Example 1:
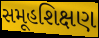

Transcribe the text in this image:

સમૂહશિક્ષણ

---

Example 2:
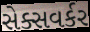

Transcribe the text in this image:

સેક્સવર્કર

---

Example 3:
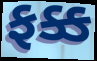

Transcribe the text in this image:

ફક્ક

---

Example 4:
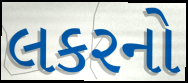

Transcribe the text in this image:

લકરનો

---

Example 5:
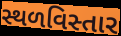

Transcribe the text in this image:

સ્થળવિસ્તાર